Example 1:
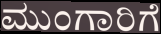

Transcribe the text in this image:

ಮುಂಗಾರಿಗೆ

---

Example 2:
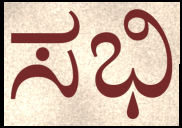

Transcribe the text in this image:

ಸಭಿ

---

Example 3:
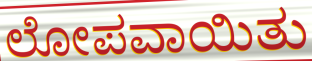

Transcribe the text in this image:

ಲೋಪವಾಯಿತು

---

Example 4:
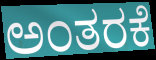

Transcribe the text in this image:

ಅಂತರಕೆ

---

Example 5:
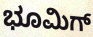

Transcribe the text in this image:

ಭೂಮಿಗ್